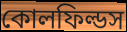
কোলফিল্ডস